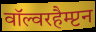
वॉल्वरहैम्प्टन